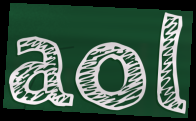
aol